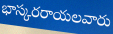
భాస్కరరాయలవారు